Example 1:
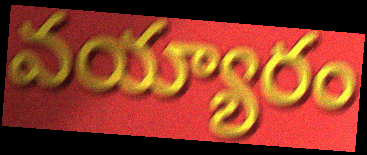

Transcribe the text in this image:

వయ్యారం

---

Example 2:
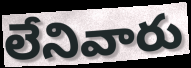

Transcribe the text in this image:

లేనివారు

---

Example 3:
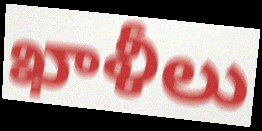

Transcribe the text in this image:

ఖాళీలు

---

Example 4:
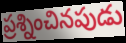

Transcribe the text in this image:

ప్రశ్నించినపుడు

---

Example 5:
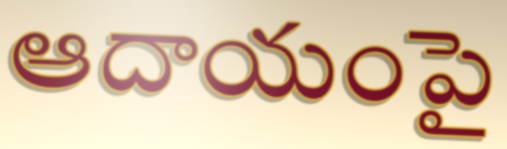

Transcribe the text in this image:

ఆదాయంపై